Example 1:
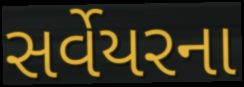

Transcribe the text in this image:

સર્વેયરના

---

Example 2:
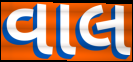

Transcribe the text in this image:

વાલ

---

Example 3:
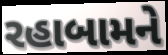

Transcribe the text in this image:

રહાબામને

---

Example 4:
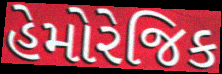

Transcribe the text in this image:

હેમોરેજિક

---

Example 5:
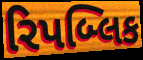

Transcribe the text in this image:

રિપબ્લિક